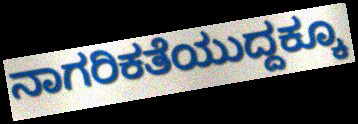
ನಾಗರಿಕತೆಯುದ್ದಕ್ಕೂ